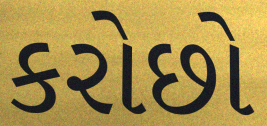
કરોછો